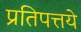
प्रतिपत्तये